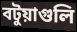
বটুয়াগুলি